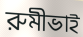
রুমীভাই